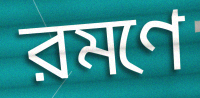
রমণে